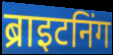
ब्राइटनिंग